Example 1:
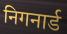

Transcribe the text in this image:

निगनार्ड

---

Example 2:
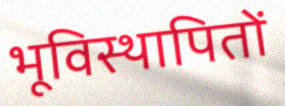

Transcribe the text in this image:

भूविस्थापितों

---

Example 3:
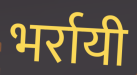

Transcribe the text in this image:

भर्रायी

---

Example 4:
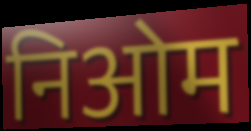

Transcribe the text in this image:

निओम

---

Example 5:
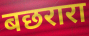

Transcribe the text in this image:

बछरारा